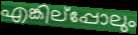
എങ്കില്പ്പോലും